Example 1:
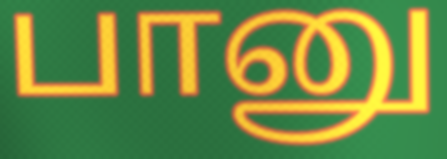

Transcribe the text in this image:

பானு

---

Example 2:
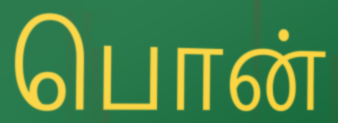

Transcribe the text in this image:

பொன்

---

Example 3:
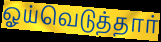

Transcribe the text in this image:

ஓய்வெடுத்தார்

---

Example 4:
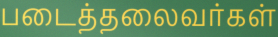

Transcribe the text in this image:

படைத்தலைவர்கள்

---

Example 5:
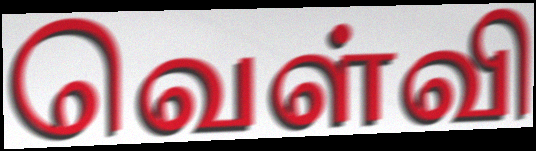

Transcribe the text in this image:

வெள்வி